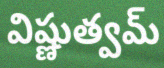
విష్ణుత్వమ్